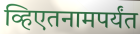
व्हिएतनामपर्यंत